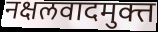
नक्षलवादमुक्त